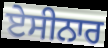
ਏਸੀਨਾਰ